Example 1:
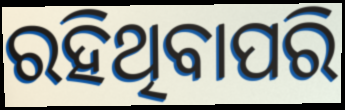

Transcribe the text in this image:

ରହିଥିବାପରି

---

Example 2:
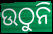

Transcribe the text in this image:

ଉଠୁନି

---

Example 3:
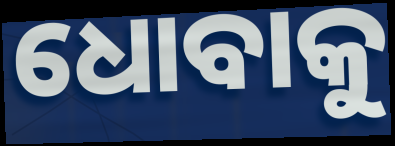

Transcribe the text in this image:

ଧୋବାକୁ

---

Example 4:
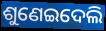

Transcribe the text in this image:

ଶୁଣେଇଦେଲି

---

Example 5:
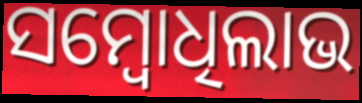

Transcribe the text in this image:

ସମ୍ବୋଧିଲାଭ